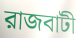
রাজবাটী